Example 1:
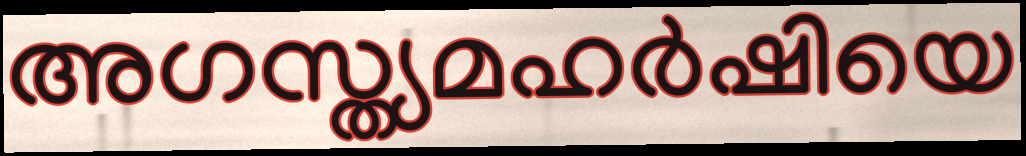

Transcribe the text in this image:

അഗസ്ത്യമഹർഷിയെ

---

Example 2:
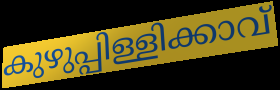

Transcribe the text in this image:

കുഴുപ്പിള്ളിക്കാവ്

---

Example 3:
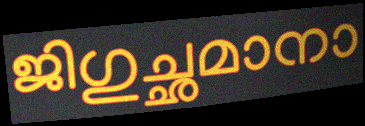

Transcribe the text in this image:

ജിഗുച്ഛമാനാ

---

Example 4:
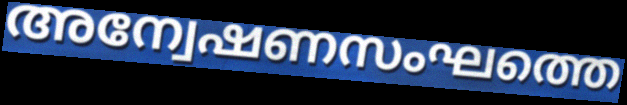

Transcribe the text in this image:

അന്വേഷണസംഘത്തെ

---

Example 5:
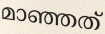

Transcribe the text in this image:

മാഞ്ഞത്